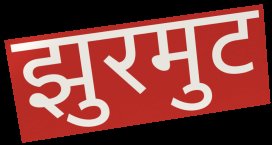
झुरमुट